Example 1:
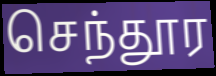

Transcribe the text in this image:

செந்தூர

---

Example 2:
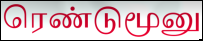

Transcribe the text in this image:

ரெண்டுமூனு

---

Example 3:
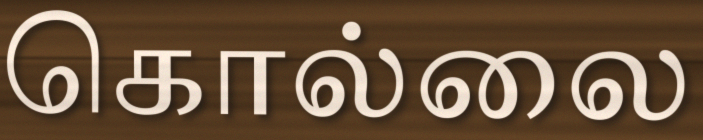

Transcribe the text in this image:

கொல்லை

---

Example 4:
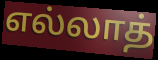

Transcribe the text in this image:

எல்லாத்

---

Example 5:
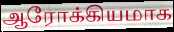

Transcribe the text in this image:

ஆரோக்கியமாக